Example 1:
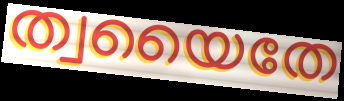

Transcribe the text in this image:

ത്വയൈതേ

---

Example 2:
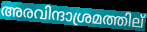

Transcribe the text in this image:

അരവിന്ദാശ്രമത്തില്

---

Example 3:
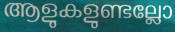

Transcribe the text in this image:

ആളുകളുണ്ടല്ലോ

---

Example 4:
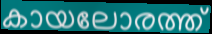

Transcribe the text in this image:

കായലോരത്ത്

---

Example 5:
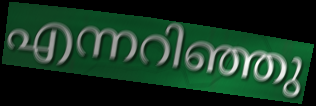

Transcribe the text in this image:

എന്നറിഞ്ഞു